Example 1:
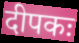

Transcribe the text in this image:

दीपकः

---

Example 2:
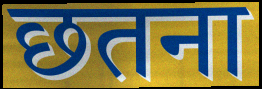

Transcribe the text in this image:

छतना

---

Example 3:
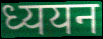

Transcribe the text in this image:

ध्ययन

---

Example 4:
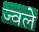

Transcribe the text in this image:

ज्वले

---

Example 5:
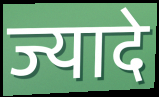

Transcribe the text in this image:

ज्यादे